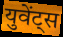
युवेंट्स